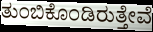
ತುಂಬಿಕೊಂಡಿರುತ್ತೇವೆ